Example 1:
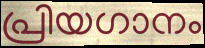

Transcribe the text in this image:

പ്രിയഗാനം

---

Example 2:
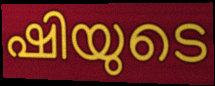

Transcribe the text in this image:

ഷിയുടെ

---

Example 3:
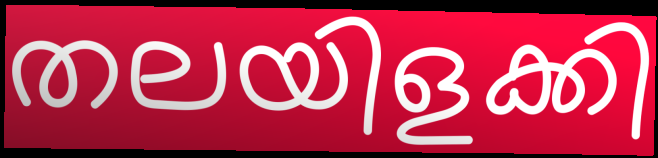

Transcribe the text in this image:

തലയിളക്കി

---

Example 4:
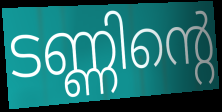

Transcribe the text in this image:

ടണ്ണിന്റെ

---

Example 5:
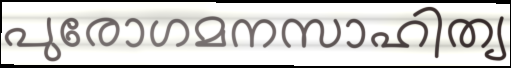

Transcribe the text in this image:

പുരോഗമനസാഹിത്യ